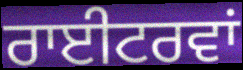
ਰਾਈਟਰਵਾਂ